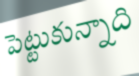
పెట్టుకున్నాది